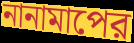
নানামাপের